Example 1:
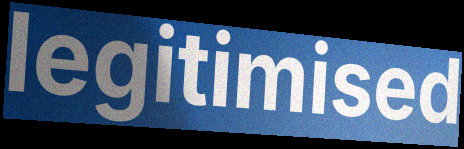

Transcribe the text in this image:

legitimised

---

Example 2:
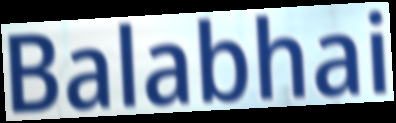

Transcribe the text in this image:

Balabhai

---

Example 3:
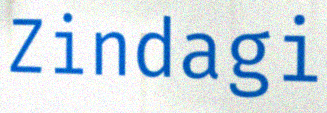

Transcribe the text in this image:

Zindagi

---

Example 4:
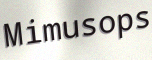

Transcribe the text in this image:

Mimusops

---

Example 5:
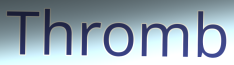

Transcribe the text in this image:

Thromb